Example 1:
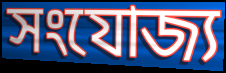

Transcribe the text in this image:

সংযোজ্য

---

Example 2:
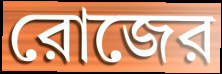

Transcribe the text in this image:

রোজের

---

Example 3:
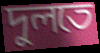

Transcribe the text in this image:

দুলতে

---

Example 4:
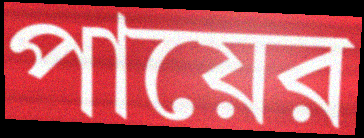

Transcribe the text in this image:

পায়ের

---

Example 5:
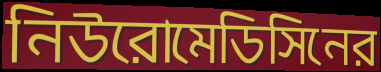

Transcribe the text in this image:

নিউরোমেডিসিনের